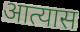
आत्यास